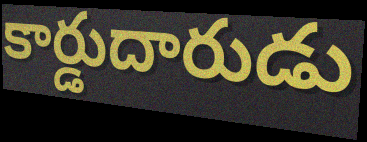
కార్డుదారుడు